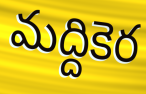
మద్దికెర